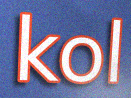
kol